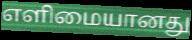
எளிமையானது